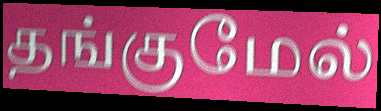
தங்குமேல்